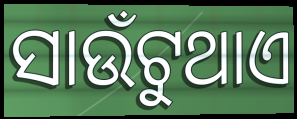
ସାଉଁଟୁଥାଏ